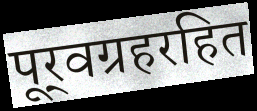
पूर्वग्रहरहित